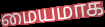
மையமாக